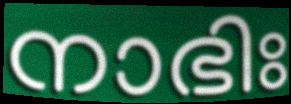
നാഭിഃ